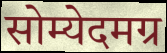
सोम्येदमग्र